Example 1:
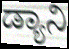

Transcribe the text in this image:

ಡ್ಯಾನಿ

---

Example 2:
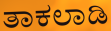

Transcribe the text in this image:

ತಾಕಲಾಡಿ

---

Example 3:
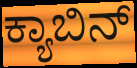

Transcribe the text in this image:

ಕ್ಯಾಬಿನ್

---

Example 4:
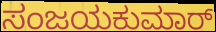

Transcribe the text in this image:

ಸಂಜಯಕುಮಾರ್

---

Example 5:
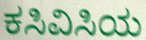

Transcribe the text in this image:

ಕಸಿವಿಸಿಯ